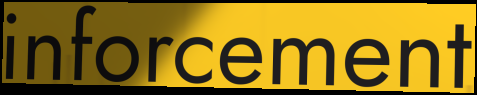
inforcement